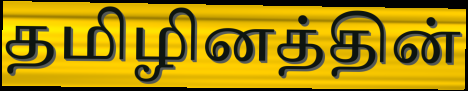
தமிழினத்தின்